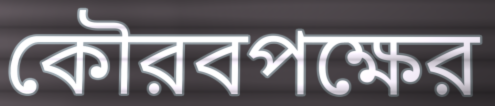
কৌরবপক্ষের